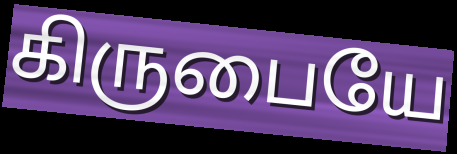
கிருபையே